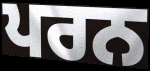
ਪਰਨ